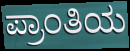
ಪ್ರಾಂತಿಯ